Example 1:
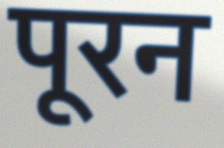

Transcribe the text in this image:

पूरन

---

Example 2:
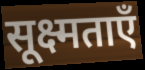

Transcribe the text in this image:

सूक्ष्मताएँ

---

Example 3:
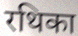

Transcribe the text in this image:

रथिका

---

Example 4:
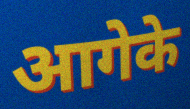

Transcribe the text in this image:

आगेके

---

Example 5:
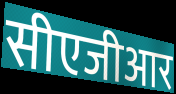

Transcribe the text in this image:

सीएजीआर